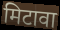
मिटावा